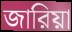
জারিয়া